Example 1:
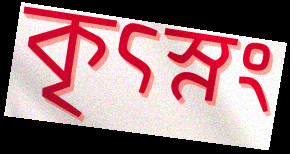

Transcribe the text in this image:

কৃৎস্নং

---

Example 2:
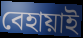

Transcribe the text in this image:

বেহায়াই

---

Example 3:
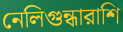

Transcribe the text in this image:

নেলিগুন্ধারাশি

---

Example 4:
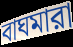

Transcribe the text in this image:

বাঘমারা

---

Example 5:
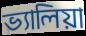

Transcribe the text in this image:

ভ্যালিয়া